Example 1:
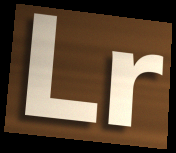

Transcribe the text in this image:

Lr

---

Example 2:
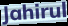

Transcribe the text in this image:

Jahirul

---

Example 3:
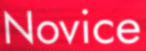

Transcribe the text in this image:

Novice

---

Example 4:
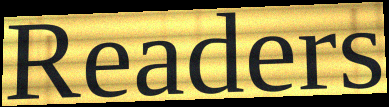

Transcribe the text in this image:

Readers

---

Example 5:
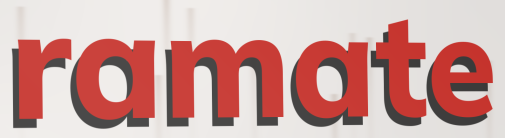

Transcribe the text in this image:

ramate